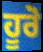
ਹੂਰੋ